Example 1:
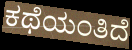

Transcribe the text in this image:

ಕಥೆಯಂತಿದೆ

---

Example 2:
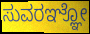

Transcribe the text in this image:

ಸುವರಞ್ಞೋ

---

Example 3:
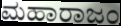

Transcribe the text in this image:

ಮಹಾರಾಜಂ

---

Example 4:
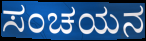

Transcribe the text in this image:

ಸಂಚಯನ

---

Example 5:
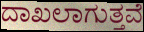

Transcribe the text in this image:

ದಾಖಲಾಗುತ್ತವೆ